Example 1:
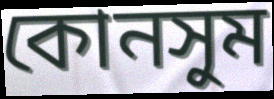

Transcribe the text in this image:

কোনসুম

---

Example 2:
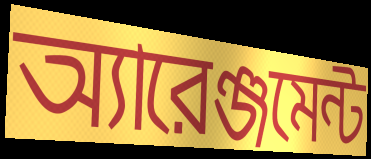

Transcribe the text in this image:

অ্যারেঞ্জমেন্ট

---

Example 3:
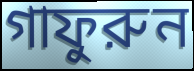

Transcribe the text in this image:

গাফুরুন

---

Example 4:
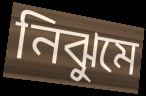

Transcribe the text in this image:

নিঝুমে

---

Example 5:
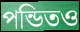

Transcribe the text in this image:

পন্ডিতও